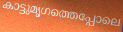
കാട്ടുമൃഗത്തെപ്പോലെ